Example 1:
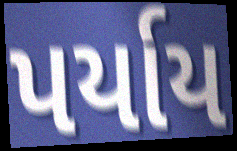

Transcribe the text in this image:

પર્યાય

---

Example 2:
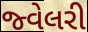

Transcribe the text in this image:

જ્વેલરી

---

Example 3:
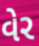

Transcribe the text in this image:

વેર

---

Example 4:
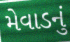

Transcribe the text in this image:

મેવાડનું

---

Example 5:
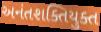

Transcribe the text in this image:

અનંતશક્તિયુક્ત